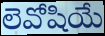
లెవోషియే